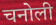
चनोली